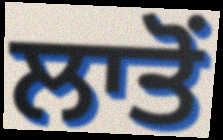
ਲਾਤੋਂ